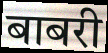
बाबरी